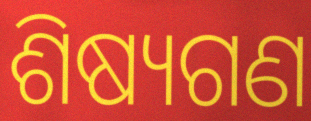
ଶିଷ୍ୟଗଣ